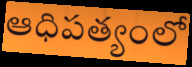
ఆధిపత్యంలో